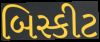
બિસ્કીટ